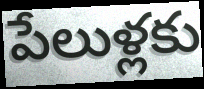
పేలుళ్లకు